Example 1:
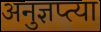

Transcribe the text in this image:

अनुज्ञप्त्या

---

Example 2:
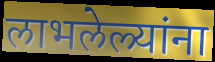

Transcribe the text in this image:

लाभलेल्यांना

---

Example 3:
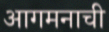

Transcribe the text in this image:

आगमनाची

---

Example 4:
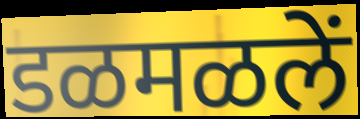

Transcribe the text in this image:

डळमळलें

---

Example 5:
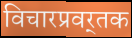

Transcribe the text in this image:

विचारप्रवर्तक